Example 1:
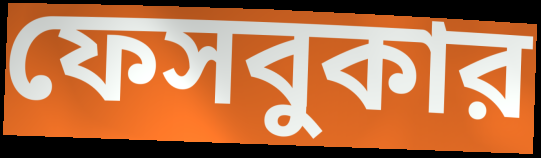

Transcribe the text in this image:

ফেসবুকার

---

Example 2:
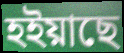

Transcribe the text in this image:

হইয়াছে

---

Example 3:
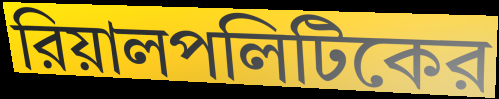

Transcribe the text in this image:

রিয়ালপলিটিকের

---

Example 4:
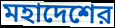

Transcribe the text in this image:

মহাদেশের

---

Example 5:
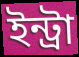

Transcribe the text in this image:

ইন্ট্রা